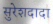
सुरेशदादा